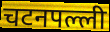
चटनपल्ली